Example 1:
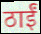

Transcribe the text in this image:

ठाईं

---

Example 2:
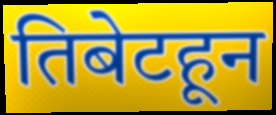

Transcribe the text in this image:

तिबेटहून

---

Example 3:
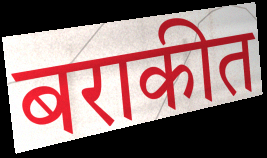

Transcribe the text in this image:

बराकीत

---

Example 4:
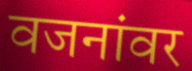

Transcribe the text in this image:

वजनांवर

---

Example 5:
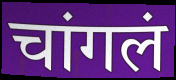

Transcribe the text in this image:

चांगलं